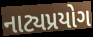
નાટ્યપ્રયોગ